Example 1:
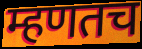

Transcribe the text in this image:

म्हणतच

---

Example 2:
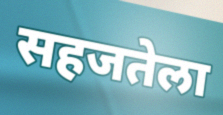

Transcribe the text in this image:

सहजतेला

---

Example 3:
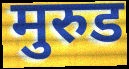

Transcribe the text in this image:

मुरुड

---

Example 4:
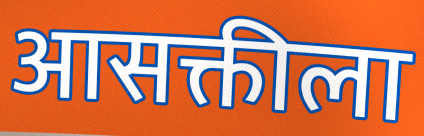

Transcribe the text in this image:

आसक्तीला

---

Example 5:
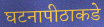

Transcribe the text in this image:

घटनापीठाकडे